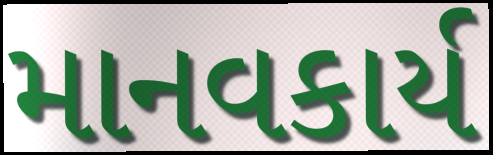
માનવકાર્ય